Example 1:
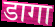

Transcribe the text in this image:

डागा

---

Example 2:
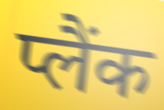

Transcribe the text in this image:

प्लैंक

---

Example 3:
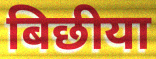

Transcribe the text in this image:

बिछीया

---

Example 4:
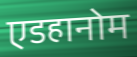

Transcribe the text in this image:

एडहानोम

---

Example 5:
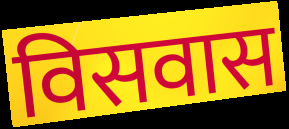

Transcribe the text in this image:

विसवास